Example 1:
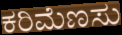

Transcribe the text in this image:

ಕರಿಮೆಣಸು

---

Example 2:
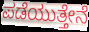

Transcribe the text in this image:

ಪಡೆಯುತ್ತೇನೆ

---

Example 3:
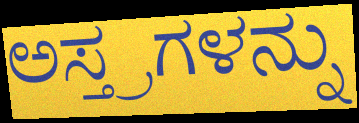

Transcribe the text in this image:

ಅಸ್ತ್ರಗಳನ್ನು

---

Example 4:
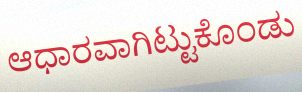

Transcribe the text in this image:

ಆಧಾರವಾಗಿಟ್ಟುಕೊಂಡು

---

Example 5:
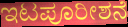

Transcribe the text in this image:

ಇಟಪೂರೀಶನೆ